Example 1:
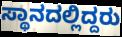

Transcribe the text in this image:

ಸ್ಥಾನದಲ್ಲಿದ್ದರು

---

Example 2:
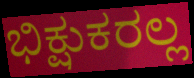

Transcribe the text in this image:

ಭಿಕ್ಷುಕರಲ್ಲ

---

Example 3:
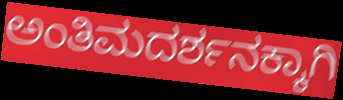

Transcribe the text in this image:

ಅಂತಿಮದರ್ಶನಕ್ಕಾಗಿ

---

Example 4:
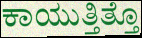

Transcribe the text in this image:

ಕಾಯುತ್ತಿತ್ತೊ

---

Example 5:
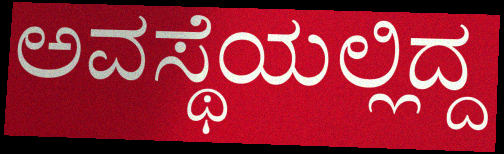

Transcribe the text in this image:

ಅವಸ್ಥೆಯಲ್ಲಿದ್ದ